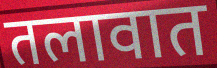
तलावात